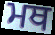
ਮਥ